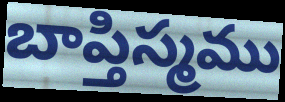
బాప్తిస్మము